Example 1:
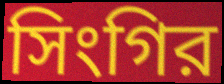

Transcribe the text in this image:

সিংগির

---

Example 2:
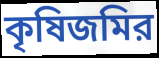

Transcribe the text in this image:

কৃষিজমির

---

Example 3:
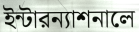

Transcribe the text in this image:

ইন্টারন্যাশনালে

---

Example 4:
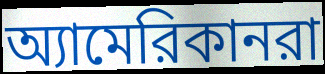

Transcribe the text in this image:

অ্যামেরিকানরা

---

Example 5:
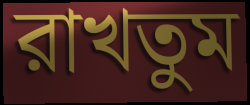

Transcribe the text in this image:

রাখতুম